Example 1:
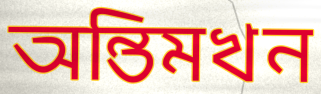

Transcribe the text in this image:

অন্তিমখন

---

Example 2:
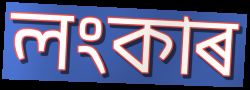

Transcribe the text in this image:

লংকাৰ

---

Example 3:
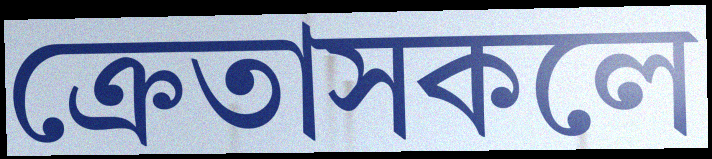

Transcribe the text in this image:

ক্ৰেতাসকলে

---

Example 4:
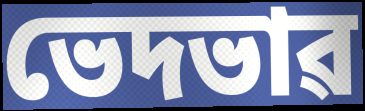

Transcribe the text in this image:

ভেদভাৱ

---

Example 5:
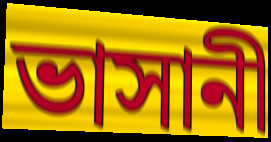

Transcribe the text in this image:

ভাসানী